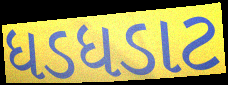
ધડધડાટ